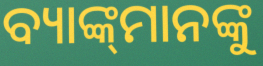
ବ୍ୟାଙ୍କ୍‌ମାନଙ୍କୁ